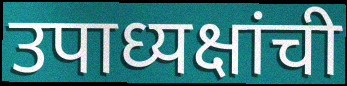
उपाध्यक्षांची